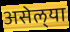
असेल्या